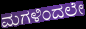
ಮಗಳಿಂದಲೇ